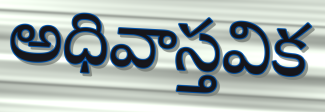
అధివాస్తవిక